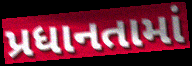
પ્રધાનતામાં